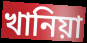
খানিয়া